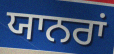
ਯਾਨਰਾਂ